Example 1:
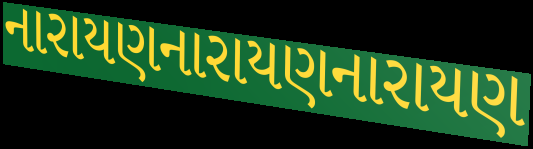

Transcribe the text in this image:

નારાયણનારાયણનારાયણ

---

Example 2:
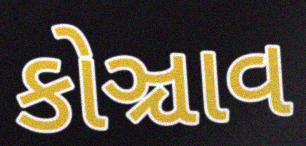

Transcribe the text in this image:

કોઞ્ચાવ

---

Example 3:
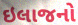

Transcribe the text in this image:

ઇલાજનો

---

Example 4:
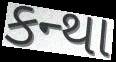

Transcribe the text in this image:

કન્થા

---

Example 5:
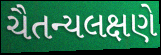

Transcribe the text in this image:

ચૈતન્યલક્ષણે